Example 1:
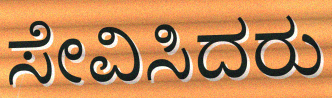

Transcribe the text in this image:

ಸೇವಿಸಿದರು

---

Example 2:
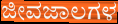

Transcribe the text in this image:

ಜೀವಜಾಲಗಳ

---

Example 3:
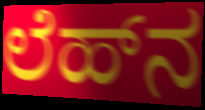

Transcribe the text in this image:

ಲೆಹ್‌ನ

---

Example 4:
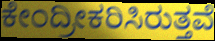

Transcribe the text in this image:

ಕೇಂದ್ರೀಕರಿಸಿರುತ್ತವೆ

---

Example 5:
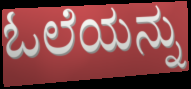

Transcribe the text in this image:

ಓಲೆಯನ್ನು